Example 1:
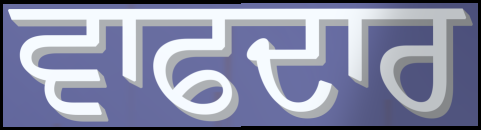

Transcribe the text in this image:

ਵਾਫਦਾਰ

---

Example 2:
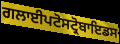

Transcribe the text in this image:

ਗਲਾਈਪਟੋਸਟ੍ਰੋਬਾਇਡਸ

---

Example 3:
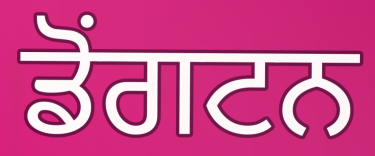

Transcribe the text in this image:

ਡੋਂਗਟਨ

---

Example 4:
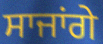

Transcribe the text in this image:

ਸਾਜਾਂਗੇ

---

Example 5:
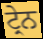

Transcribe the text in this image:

ਟ੍ਰੇਨ